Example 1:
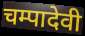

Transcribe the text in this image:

चम्पादेवी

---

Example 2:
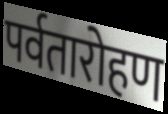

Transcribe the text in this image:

पर्वतारोहण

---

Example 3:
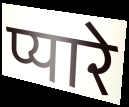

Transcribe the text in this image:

प्यारे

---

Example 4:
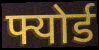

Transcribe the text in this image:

फ्योर्ड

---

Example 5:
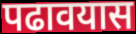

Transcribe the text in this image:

पढावयास